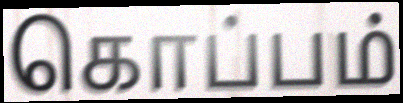
கொப்பம்